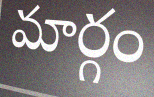
మార్గం